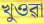
খুওৱা